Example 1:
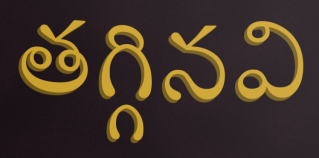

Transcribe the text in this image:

తగ్గినవి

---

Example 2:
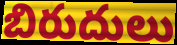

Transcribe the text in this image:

బిరుదులు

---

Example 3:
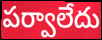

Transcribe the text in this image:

పర్వాలేదు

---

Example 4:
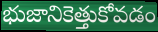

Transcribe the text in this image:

భుజానికెత్తుకోవడం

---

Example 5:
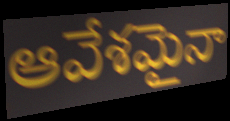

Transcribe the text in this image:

ఆవేశమైనా